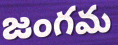
జంగమ